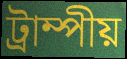
ট্রাম্পীয়